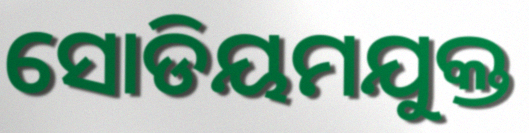
ସୋଡିୟମଯୁକ୍ତ